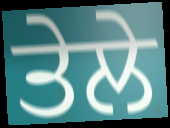
ਤੇਲੇ